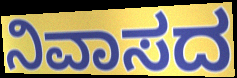
ನಿವಾಸದ